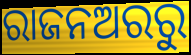
ରାଜନଅରରୁ